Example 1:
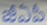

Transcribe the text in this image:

జీఏపీ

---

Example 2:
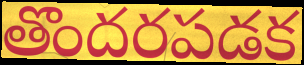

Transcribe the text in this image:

తొందరపడక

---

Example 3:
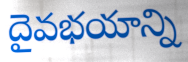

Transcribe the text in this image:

దైవభయాన్ని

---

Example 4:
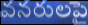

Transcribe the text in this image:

వనరులపై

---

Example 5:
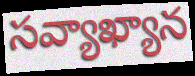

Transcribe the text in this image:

సవ్యాఖ్యాన